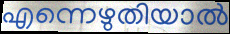
എന്നെഴുതിയാൽ